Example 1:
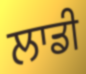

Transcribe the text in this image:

ਲਾਡੀ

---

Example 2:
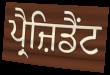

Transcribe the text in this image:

ਪ੍ਰੈਜ਼ਿਡੈਂਟ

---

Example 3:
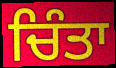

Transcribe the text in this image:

ਚਿੰਤਾ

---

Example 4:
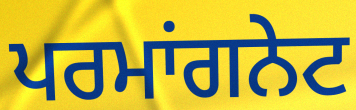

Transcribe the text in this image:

ਪਰਮਾਂਗਨੇਟ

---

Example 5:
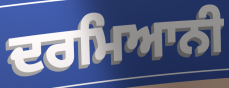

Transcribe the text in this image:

ਦਰਮਿਆਨੀ